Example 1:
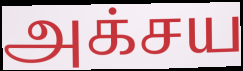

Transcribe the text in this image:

அக்சய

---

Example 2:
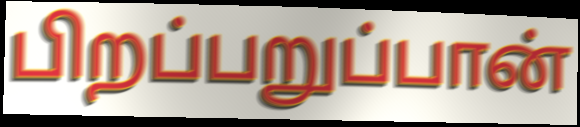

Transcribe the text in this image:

பிறப்பறுப்பான்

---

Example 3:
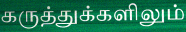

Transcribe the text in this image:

கருத்துக்களிலும்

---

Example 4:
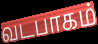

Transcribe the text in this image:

வடபாகம்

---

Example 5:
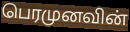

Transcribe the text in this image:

பெரமுனவின்